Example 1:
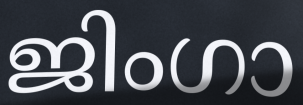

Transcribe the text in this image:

ജിംഗാ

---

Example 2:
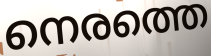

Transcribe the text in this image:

നെരത്തെ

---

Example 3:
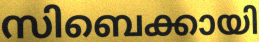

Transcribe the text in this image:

സിബെക്കായി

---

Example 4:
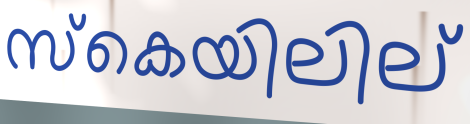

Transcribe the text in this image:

സ്കെയിലില്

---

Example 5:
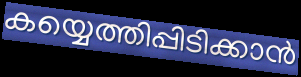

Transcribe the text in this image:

കയ്യെത്തിപ്പിടിക്കാൻ